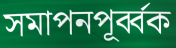
সমাপনপূর্ব্বক